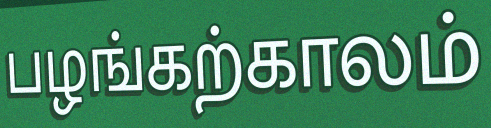
பழங்கற்காலம்